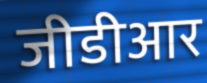
जीडीआर